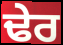
ਢੇਰ